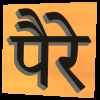
पैरे